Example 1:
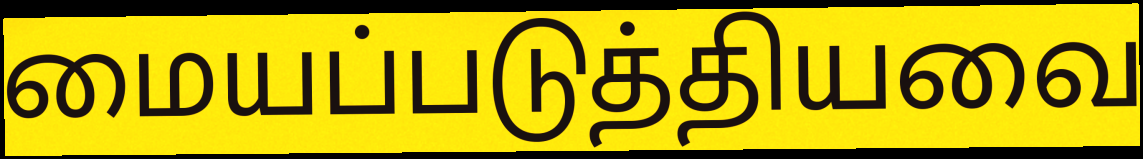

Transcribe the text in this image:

மையப்படுத்தியவை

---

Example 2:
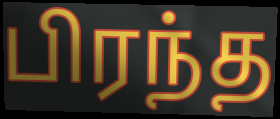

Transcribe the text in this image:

பிரந்த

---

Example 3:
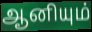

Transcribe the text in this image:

ஆனியும்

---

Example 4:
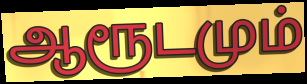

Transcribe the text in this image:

ஆரூடமும்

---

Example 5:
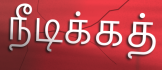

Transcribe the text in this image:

நீடிக்கத்